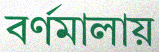
বর্ণমালায়